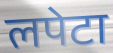
लपेटा